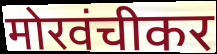
मोरवंचीकर